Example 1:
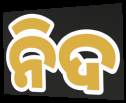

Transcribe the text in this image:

ନିଦ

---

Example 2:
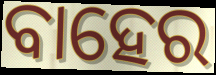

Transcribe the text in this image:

ବାହେର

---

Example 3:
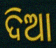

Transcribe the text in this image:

ଦିଆ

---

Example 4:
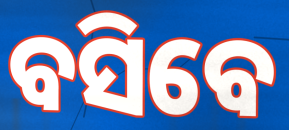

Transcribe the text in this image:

ବସିବେ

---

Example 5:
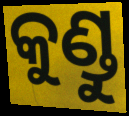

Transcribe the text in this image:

କୁଣ୍ଡୁ